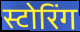
स्टोरिंग